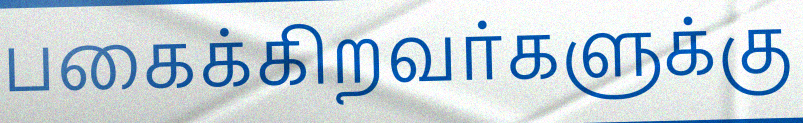
பகைக்கிறவர்களுக்கு